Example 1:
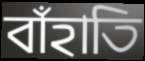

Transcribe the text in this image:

বাঁহাতি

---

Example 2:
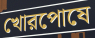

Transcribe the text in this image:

খোরপোষে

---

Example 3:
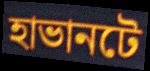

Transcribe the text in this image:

হাভানটে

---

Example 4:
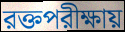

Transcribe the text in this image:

রক্তপরীক্ষায়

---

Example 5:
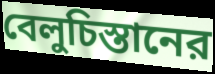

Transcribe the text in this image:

বেলুচিস্তানের